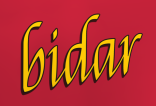
bidar